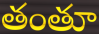
తంతూ